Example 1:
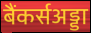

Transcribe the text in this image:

बैंकर्सअड्डा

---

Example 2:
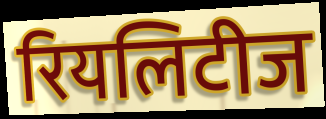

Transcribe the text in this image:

रियलिटीज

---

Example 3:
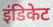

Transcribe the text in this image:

इंडिकेट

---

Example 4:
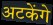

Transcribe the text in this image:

अटकेंगे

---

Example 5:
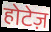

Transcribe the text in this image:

होटेज़